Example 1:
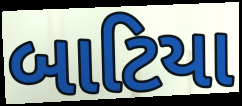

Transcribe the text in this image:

બાટિયા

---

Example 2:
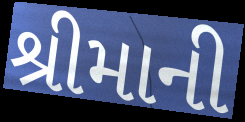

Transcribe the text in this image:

શ્રીમાની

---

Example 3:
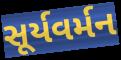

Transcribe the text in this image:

સૂર્યવર્મન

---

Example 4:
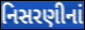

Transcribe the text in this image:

નિસરણીનાં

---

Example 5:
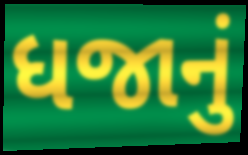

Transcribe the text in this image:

ધજાનું